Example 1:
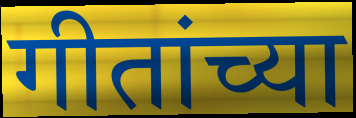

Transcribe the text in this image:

गीतांच्या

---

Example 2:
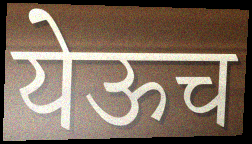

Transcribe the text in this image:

येऊच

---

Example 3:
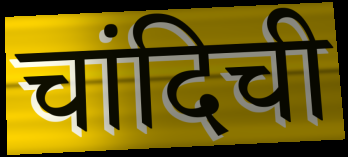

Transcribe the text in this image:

चांदिची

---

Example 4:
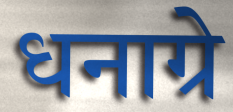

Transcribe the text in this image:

धनाग्रे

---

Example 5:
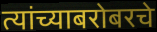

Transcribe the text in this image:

त्यांच्याबरोबरचे